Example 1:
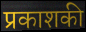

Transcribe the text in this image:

प्रकाशकी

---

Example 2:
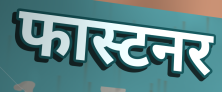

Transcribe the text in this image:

फास्टनर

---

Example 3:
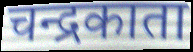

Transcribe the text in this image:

चन्द्रकाता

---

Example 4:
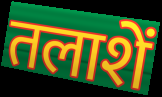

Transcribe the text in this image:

तलाशें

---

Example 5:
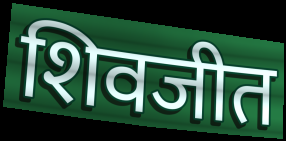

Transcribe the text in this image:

शिवजीत